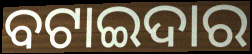
ବଟାଇଦାର